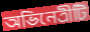
অভিনেত্রীটি